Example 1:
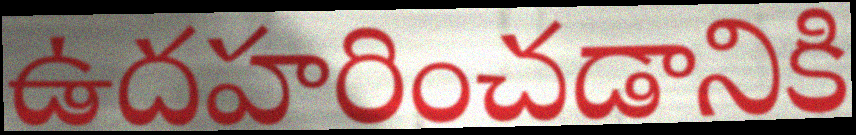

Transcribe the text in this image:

ఉదహరించడానికి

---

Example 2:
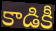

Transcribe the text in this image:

కాడికీ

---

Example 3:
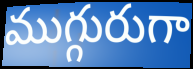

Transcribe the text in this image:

ముగ్గురుగా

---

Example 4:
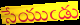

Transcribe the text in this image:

సేయుఁడు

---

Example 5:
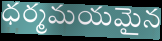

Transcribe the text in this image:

ధర్మమయమైన